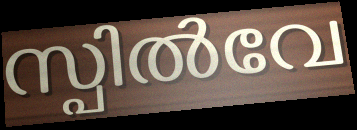
സ്പിൽവേ